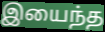
இயைந்த